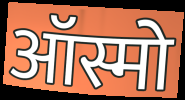
ऑस्मो